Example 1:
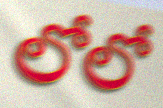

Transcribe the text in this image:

లోలో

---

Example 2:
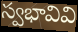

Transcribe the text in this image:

స్వభావివి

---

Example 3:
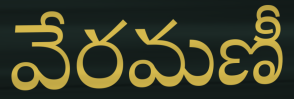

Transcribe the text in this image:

వేరమణీ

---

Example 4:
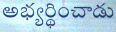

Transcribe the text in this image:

అభ్యర్థించాడు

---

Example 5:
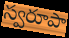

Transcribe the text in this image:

స్వరూపా